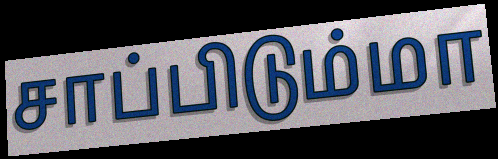
சாப்பிடும்மா